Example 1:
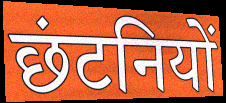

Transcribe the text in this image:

छंटनियों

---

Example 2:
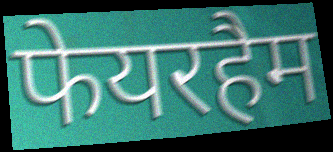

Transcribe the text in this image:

फेयरहैम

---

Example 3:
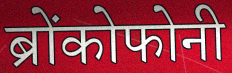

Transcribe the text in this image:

ब्रोंकोफोनी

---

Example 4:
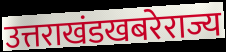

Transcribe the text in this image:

उत्तराखंडखबरेराज्य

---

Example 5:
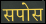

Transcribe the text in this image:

सपोस